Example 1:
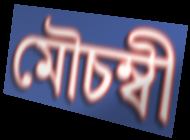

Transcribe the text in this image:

মৌচম্বী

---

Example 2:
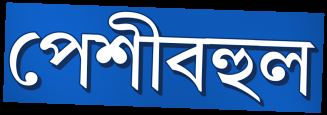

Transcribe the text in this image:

পেশীবহুল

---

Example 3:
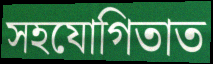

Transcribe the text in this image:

সহযোগিতাত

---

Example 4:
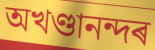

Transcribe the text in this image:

অখণ্ডানন্দৰ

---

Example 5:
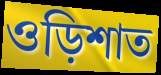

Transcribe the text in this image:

ওড়িশাত